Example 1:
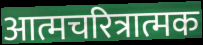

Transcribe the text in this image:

आत्मचरित्रात्मक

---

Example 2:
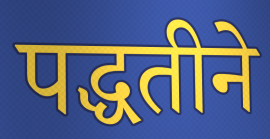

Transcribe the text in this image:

पद्धतीने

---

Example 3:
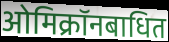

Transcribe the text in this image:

ओमिक्रॉनबाधित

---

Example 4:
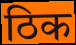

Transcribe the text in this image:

ठिक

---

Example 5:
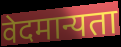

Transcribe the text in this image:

वेदमान्यता